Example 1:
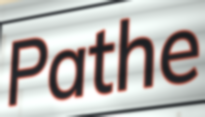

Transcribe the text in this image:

Pathe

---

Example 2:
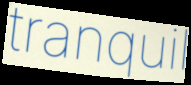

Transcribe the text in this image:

tranquil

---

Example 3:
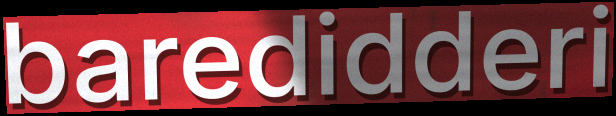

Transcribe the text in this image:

baredidderi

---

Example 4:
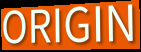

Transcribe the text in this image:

ORIGIN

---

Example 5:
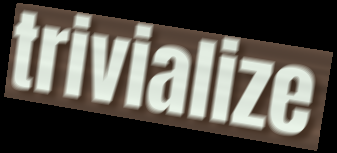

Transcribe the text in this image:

trivialize